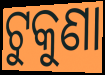
ଟୁକୁଣା